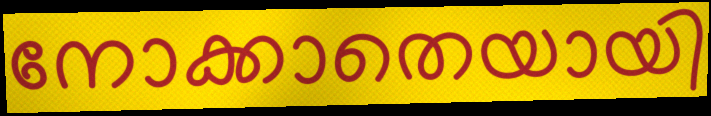
നോക്കാതെയായി